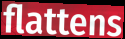
flattens